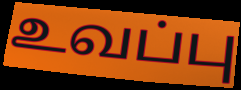
உவப்பு